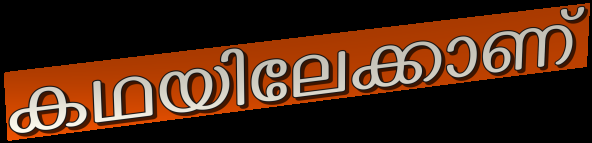
കഥയിലേക്കാണ്